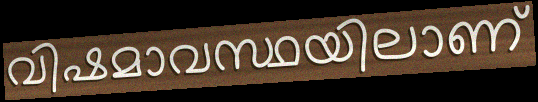
വിഷമാവസ്ഥയിലാണ്